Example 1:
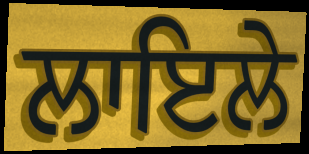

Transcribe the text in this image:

ਲਾਇਲੇ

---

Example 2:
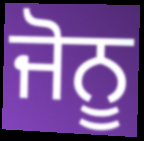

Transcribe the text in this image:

ਜੋਨੂ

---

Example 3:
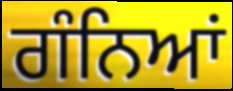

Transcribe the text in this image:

ਗੰਨਿਆਂ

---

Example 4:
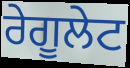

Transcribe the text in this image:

ਰੇਗੂਲੇਟ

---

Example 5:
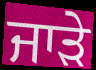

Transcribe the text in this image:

ਜਾੜੇ